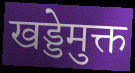
खड्डेमुक्त